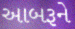
આબરૂને